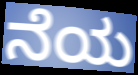
ನೆಯ